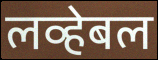
लव्हेबल